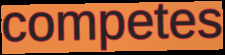
competes